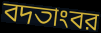
বদতাংবর